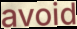
avoid